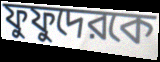
ফুফুদেরকে